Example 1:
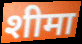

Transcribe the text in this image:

शीमा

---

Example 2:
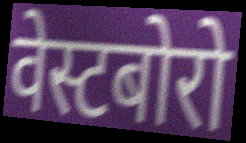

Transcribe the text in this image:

वेस्टबोरो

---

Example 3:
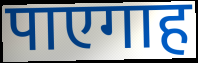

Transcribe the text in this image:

पाएगाह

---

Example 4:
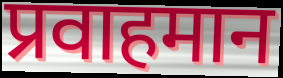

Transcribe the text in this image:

प्रवाहमान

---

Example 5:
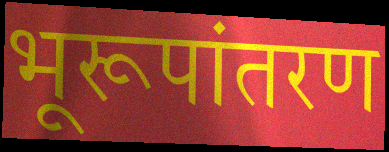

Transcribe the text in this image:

भूरूपांतरण